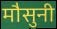
मौसुनी